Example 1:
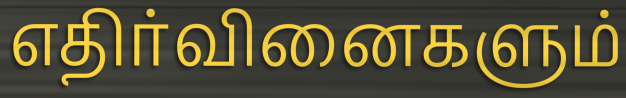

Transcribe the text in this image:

எதிர்வினைகளும்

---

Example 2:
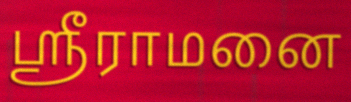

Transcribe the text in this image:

ஸ்ரீராமனை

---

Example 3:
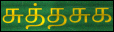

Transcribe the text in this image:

சுத்தசுக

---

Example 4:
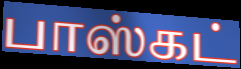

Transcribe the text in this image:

பாஸ்கட்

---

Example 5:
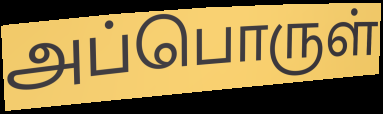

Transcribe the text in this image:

அப்பொருள்